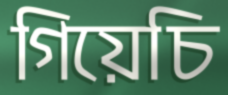
গিয়েচি